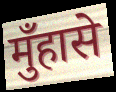
मुँहासे